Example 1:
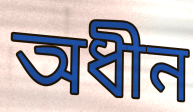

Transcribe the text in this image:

অধীন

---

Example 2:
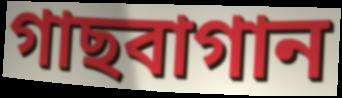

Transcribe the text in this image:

গাছবাগান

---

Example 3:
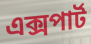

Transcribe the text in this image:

এক্সপার্ট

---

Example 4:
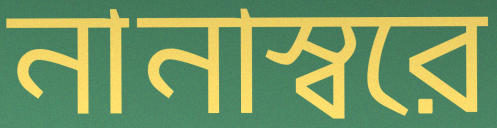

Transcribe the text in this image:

নানাস্বরে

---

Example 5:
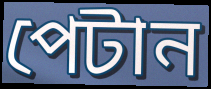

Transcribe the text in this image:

পেটান